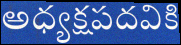
అధ్యక్షపదవికి